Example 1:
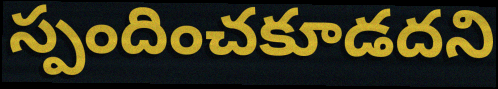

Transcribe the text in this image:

స్పందించకూడదని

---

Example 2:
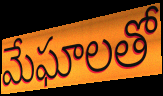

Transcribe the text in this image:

మేఘాలతో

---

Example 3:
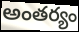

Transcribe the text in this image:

అంతర్యం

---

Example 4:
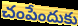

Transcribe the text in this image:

చంపేందుకు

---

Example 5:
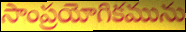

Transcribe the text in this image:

సాంప్రయోగికమును